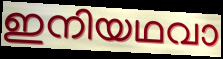
ഇനിയഥവാ